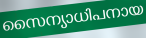
സൈന്യാധിപനായ